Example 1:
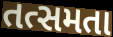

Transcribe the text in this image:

તત્સમતા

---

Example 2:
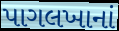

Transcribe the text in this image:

પાગલખાનાં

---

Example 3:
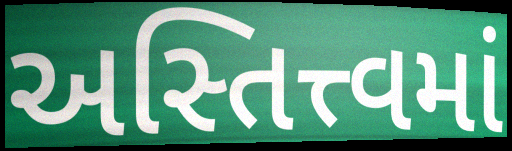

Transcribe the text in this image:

અસ્તિત્ત્વમાં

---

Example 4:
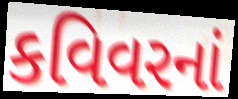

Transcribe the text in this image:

કવિવરનાં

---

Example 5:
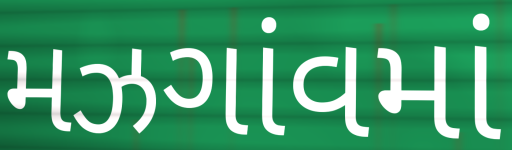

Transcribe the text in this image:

મઝગાંવમાં